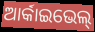
ଆର୍କାଇଭେଲ୍